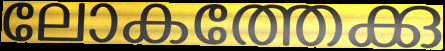
ലോകത്തേക്കു